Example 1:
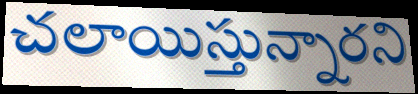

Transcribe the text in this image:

చలాయిస్తున్నారని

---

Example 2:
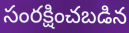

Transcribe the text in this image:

సంరక్షించబడిన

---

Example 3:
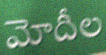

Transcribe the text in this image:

మోదీల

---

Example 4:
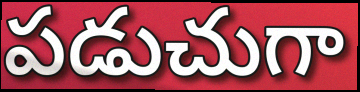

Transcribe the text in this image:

పడుచుగా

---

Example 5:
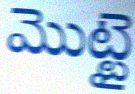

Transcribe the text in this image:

మొట్టై